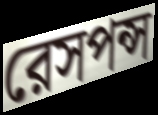
রেসপন্স